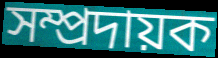
সম্প্ৰদায়ক